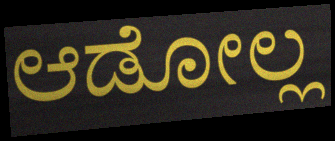
ಆಡೋಲ್ಲ